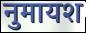
नुमायश